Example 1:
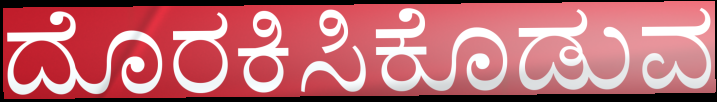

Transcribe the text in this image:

ದೊರಕಿಸಿಕೊಡುವ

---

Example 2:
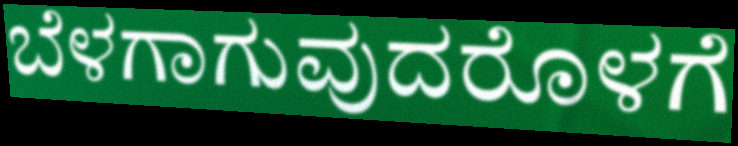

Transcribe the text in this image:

ಬೆಳಗಾಗುವುದರೊಳಗೆ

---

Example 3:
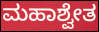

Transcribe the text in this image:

ಮಹಾಶ್ವೇತ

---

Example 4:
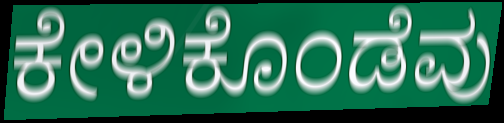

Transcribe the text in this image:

ಕೇಳಿಕೊಂಡೆವು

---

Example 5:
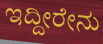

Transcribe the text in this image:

ಇದ್ದೀರೇನು